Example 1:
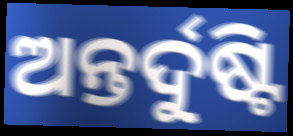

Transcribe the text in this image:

ଅନ୍ତର୍ଦୁଷ୍ଟି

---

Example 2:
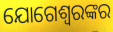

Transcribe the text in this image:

ଯୋଗେଶ୍ଵରଙ୍କର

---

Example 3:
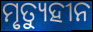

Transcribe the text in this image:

ମୃତ୍ୟୁହୀନ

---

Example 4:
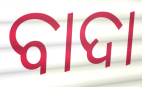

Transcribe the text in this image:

ବାଦା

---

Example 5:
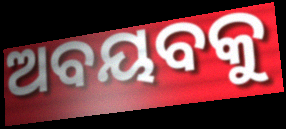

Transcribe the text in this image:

ଅବୟବକୁ